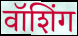
वॉशिंग